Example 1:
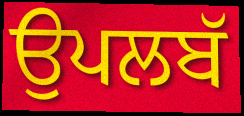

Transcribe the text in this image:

ਉਪਲਬੱ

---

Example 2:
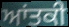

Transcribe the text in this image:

ਆਂਤਕੀ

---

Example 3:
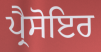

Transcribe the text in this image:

ਪ੍ਰੈਸੋਇਰ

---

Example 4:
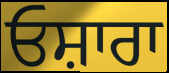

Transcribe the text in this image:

ਓਸ਼ਾਰਾ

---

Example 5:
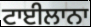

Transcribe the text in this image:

ਟਾਈਲਾਨਾ